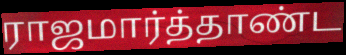
ராஜமார்த்தாண்ட